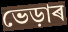
ভেড়াৰ